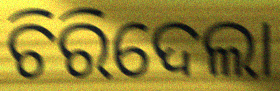
ଚିରିଦେଲା